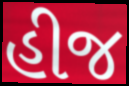
હીજ